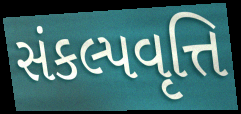
સંકલ્પવૃત્તિ